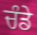
ਚੰਡੇ